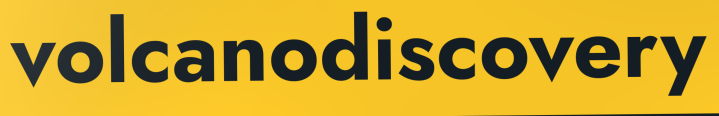
volcanodiscovery